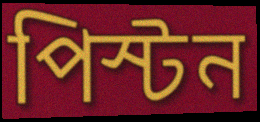
পিস্টন